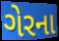
ગેરના